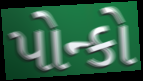
પોન્કો